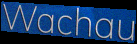
Wachau